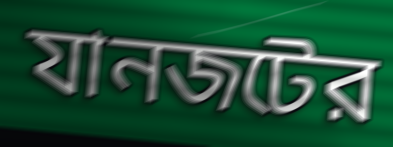
যানজটের